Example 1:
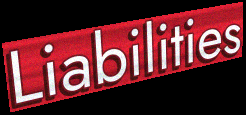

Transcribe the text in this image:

Liabilities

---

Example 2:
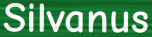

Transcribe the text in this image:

Silvanus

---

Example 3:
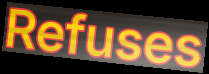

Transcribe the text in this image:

Refuses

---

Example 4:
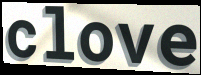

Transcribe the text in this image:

clove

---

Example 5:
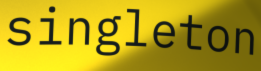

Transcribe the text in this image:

singleton